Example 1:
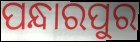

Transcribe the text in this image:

ପନ୍ଧାରପୁର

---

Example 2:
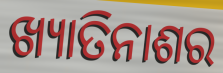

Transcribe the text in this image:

ଖ୍ୟାତିନାଶର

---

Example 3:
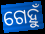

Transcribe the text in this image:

ଗେହୁଁ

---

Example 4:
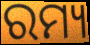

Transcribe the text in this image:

ରମ୍ୟ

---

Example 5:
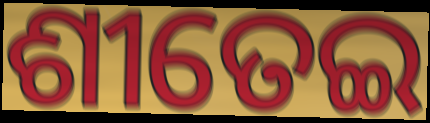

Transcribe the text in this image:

ଶୀତେଇ